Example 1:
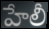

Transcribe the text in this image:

హేలీ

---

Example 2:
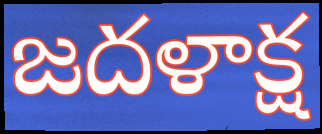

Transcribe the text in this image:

జదళాక్ష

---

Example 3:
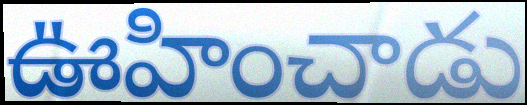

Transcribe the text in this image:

ఊహించాడు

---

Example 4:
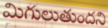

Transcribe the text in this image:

మిగులుతుందని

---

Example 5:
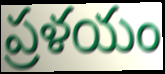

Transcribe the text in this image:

ప్రళయం